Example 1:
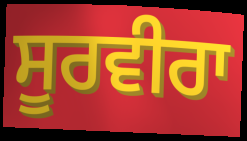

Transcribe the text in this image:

ਸੂਰਵੀਰਾ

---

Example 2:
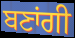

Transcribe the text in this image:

ਬਣਾਂਗੀ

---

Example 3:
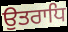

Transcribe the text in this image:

ਉਤਰਾਧਿ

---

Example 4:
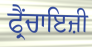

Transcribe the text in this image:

ਫ੍ਰੈਂਚਾਇਜ਼ੀ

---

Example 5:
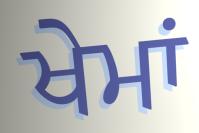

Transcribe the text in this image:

ਖੇਮਾਂ